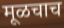
मूळचाच